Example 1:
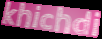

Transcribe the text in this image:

khichdi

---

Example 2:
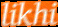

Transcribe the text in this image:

likhi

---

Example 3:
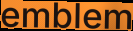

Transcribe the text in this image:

emblem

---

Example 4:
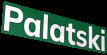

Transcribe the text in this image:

Palatski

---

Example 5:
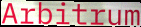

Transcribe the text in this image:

Arbitrum